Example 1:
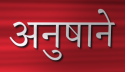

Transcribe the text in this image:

अनुषाने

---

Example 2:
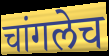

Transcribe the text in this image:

चांगलेच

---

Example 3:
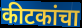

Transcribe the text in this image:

कीटकांचा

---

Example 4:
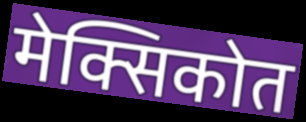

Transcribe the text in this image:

मेक्सिकोत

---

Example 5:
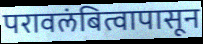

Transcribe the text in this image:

परावलंबित्वापासून